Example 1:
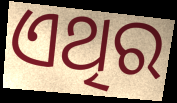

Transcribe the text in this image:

ଏଥିର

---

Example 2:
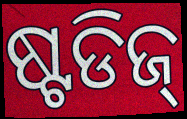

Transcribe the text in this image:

ଷ୍ଟଡିଜ୍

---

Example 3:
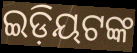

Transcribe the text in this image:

ଇଡ଼ିୟଟଙ୍କ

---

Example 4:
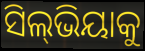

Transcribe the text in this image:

ସିଲ୍‍ଭିୟାକୁ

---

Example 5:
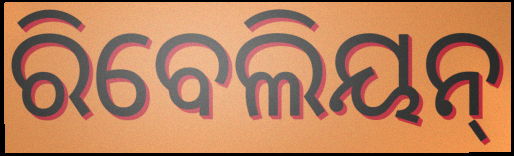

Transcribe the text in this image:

ରିବେଲିୟନ୍